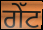
ਗੇੱਟ